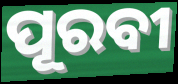
ପୂରବୀ